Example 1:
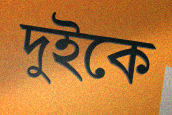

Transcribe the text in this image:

দুইকে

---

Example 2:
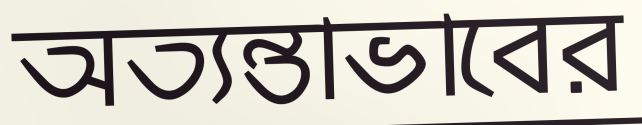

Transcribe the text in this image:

অত্যন্তাভাবের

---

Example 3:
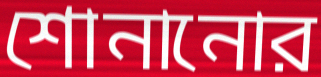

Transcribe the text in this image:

শোনানোর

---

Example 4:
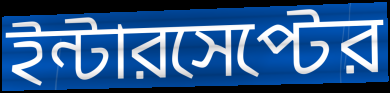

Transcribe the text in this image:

ইন্টারসেপ্টের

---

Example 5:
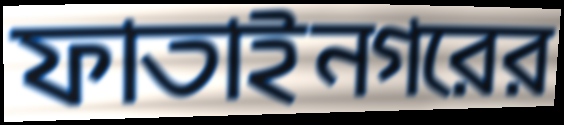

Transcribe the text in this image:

ফাতাইনগরের